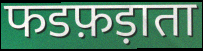
फडफ़ड़ाता